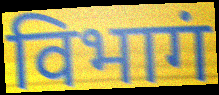
विभागं